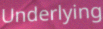
Underlying